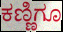
ಕಣ್ಣಿಗೂ